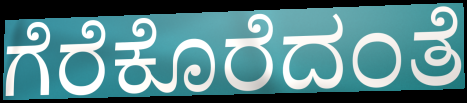
ಗೆರೆಕೊರೆದಂತೆ